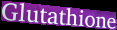
Glutathione